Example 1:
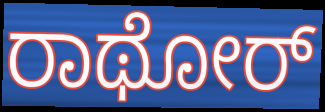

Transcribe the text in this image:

ರಾಥೋರ್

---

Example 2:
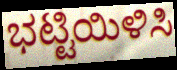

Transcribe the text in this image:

ಭಟ್ಟಿಯಿಳಿಸಿ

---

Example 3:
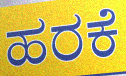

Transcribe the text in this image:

ಹರಕೆ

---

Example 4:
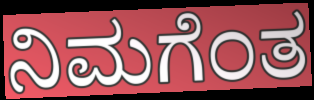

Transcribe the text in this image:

ನಿಮಗೆಂತ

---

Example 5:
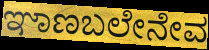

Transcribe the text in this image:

ಞಾಣಬಲೇನೇವ